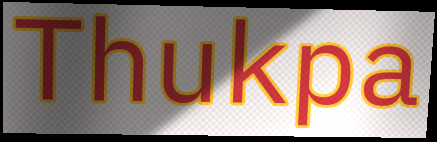
Thukpa